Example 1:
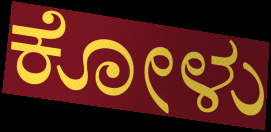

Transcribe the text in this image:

ಕೋಳು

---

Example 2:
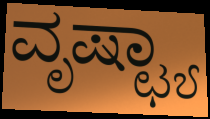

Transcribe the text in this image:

ವೃಷ್ಟ್ಯಾ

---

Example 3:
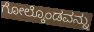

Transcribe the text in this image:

ಗೋಲ್ಕೊಂಡವನ್ನು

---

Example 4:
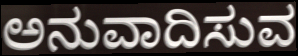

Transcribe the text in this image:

ಅನುವಾದಿಸುವ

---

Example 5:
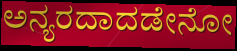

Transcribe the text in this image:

ಅನ್ಯರದಾದಡೇನೋ